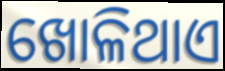
ଖୋଳିଥାଏ